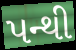
પન્થી